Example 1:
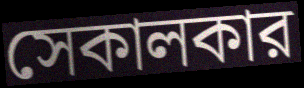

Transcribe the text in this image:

সেকালকার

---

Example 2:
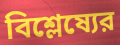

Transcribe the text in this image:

বিশ্লেষ্যের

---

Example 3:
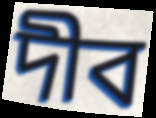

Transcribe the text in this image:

দীব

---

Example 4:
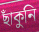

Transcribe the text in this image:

ছাঁকুনি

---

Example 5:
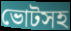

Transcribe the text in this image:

ভোটসহ